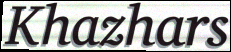
Khazhars